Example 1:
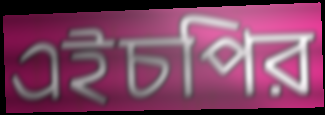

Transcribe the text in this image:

এইচপির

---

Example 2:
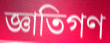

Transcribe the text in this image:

জ্ঞাতিগণ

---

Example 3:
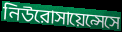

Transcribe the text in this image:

নিউরোসায়েন্সেসে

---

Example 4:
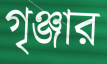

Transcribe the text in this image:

গৃঞ্জার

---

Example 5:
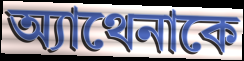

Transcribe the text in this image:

অ্যাথেনাকে